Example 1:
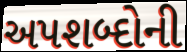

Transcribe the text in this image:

અપશબ્દોની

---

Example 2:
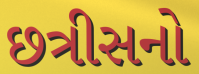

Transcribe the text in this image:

છત્રીસનો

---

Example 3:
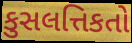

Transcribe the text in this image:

કુસલત્તિકતો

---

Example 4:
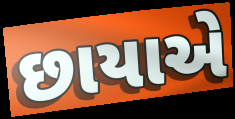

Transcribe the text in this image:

છાયાએ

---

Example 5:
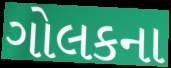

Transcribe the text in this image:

ગોલકના